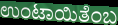
ಉಂಟಾಯಿತೆಂಬ